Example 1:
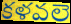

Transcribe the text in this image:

కళవలె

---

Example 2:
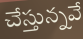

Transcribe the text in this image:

చేస్తున్నవే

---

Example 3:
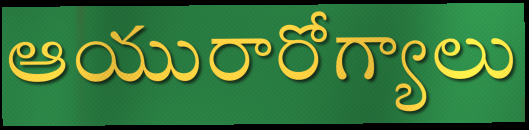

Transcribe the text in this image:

ఆయురారోగ్యాలు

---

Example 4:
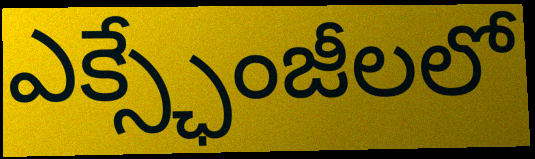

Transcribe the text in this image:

ఎక్స్ఛేంజీలలో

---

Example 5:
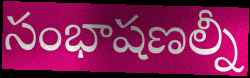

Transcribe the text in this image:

సంభాషణల్నీ